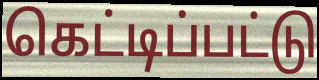
கெட்டிப்பட்டு